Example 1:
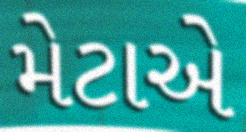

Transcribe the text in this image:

મેટાએ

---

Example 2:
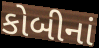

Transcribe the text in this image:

કોબીનાં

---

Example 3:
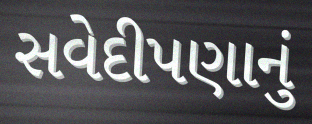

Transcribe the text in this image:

સવેદીપણાનું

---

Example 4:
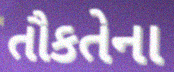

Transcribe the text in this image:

તૌકતેના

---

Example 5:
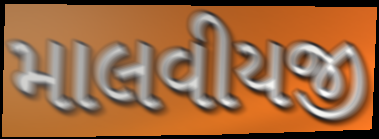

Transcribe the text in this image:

માલવીયજી